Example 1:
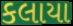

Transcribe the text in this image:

કલાયા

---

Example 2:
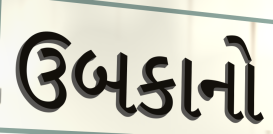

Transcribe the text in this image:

ઉબકાનો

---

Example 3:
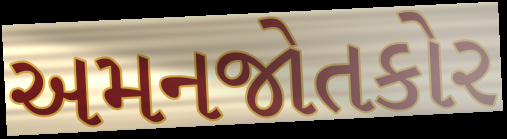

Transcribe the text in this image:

અમનજોતકોર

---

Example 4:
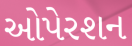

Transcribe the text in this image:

ઓપેરશન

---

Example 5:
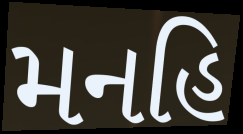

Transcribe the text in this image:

મનહિ